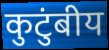
कुटुंबीय